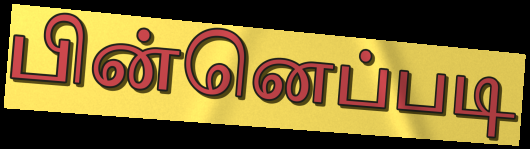
பின்னெப்படி